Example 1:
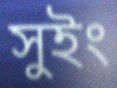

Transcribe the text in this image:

সুইং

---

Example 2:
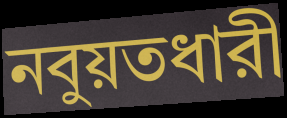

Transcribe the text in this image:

নবুয়তধারী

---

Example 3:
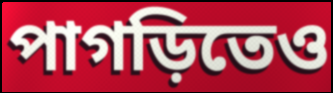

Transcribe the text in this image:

পাগড়িতেও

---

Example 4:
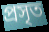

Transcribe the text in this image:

প্রসৃত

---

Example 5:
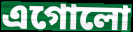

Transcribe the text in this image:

এগোলো